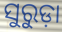
ସୁରୁଡ଼ା